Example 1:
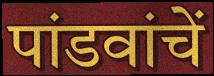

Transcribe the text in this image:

पांडवांचें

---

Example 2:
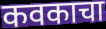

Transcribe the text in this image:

कवकाचा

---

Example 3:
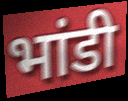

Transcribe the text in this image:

भांडी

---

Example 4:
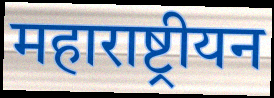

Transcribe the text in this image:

महाराष्ट्रीयन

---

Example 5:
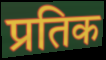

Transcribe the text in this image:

प्रतिक